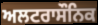
ਅਲਟਰਾਸੌਨਿਕ